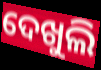
ଦେଖୁଲି